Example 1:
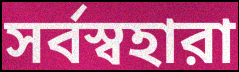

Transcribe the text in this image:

সর্বস্বহারা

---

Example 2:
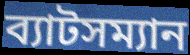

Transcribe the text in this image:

ব্যাটসম্যান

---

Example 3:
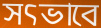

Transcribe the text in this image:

সৎভাবে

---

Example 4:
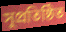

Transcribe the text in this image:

সুপ্রতিষ্ঠিত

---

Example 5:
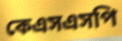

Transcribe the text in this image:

কেএসএসপি